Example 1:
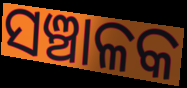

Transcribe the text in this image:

ସଞ୍ଚାଳକ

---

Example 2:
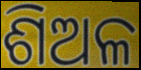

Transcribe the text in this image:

ଶିଅଳ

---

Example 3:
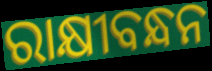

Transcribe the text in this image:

ରାକ୍ଷୀବନ୍ଧନ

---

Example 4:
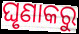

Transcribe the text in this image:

ଘୃଣାକରୁ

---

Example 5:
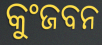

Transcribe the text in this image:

କୁଂଜବନ